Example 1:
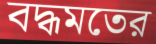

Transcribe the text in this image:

বদ্ধমতের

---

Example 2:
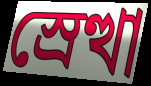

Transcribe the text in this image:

স্রেত্থা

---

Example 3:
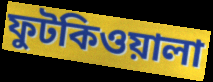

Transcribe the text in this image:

ফুটকিওয়ালা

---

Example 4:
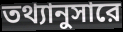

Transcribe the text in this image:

তথ্যানুসারে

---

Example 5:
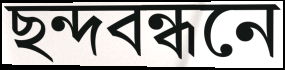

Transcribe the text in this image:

ছন্দবন্ধনে